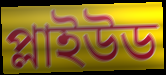
প্লাইউড